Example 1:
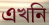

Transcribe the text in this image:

এখনি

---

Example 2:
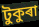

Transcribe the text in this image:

টুকুৰা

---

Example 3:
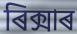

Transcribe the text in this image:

ৰিক্সাৰ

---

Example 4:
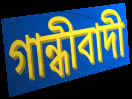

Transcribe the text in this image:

গান্ধীবাদী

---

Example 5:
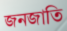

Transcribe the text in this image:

জনজাতি